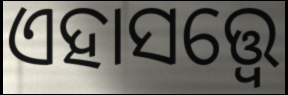
ଏହାସତ୍ତ୍ବେ